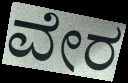
ವೇರ